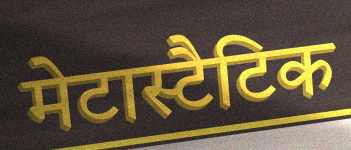
मेटास्टैटिक